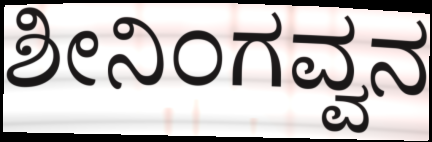
ಶೀನಿಂಗವ್ವನ